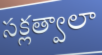
సక్లత్వాలా